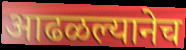
आढळल्यानेच